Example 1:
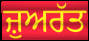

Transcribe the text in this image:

ਜ਼ੁਅਰੱਤ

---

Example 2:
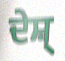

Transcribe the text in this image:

ਦੇਸ਼੍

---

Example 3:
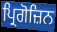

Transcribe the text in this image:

ਪ੍ਰਿਗੋਜ਼ਿਨ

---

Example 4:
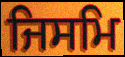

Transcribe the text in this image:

ਜਿਸਮਿ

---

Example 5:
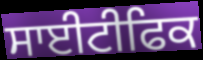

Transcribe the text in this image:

ਸਾਈਟੀਫਿਕ